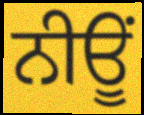
ਨੀਊਂ